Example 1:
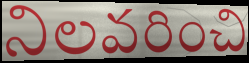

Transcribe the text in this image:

నిలవరించి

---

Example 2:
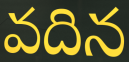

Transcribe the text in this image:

వదిన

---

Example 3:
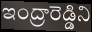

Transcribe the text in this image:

ఇంద్రారెడ్డిని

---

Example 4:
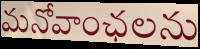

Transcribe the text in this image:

మనోవాంఛలను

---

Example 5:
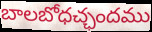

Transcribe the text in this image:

బాలబోధచ్ఛందము